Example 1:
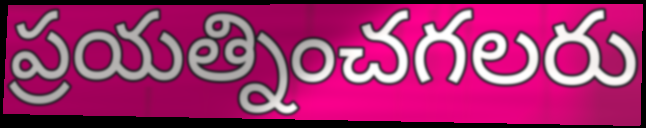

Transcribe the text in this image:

ప్రయత్నించగలరు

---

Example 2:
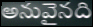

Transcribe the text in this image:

అనువైనది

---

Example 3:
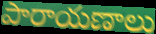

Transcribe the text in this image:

పారాయణాలు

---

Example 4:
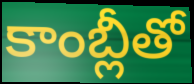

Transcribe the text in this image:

కాంబ్లీతో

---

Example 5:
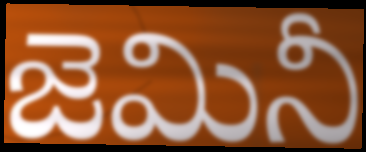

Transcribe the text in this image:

జెమినీ